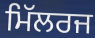
ਮਿੱਲਰਜ